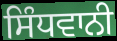
ਸਿੰਧਵਾਨੀ